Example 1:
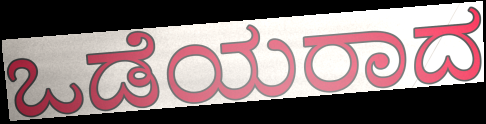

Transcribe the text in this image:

ಒಡೆಯರಾದ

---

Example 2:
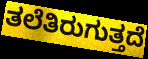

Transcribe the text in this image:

ತಲೆತಿರುಗುತ್ತದೆ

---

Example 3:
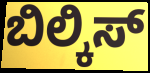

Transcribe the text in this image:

ಬಿಲ್ಕಿಸ್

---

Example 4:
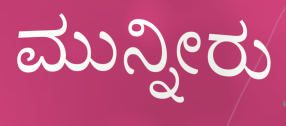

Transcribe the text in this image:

ಮುನ್ನೀರು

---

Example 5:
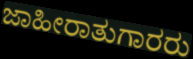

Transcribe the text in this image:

ಜಾಹೀರಾತುಗಾರರು